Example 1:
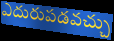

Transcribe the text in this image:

ఎదురుపడవచ్చు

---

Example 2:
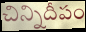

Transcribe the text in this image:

చిన్నిదీపం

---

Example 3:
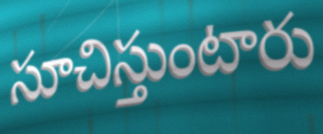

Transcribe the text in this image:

సూచిస్తుంటారు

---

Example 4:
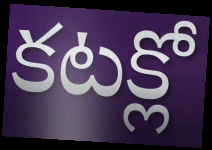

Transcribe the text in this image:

కటక్లో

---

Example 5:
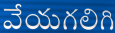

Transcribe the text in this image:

వేయగలిగి